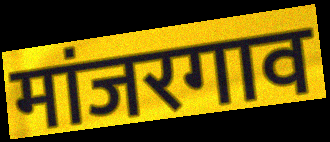
मांजरगाव